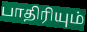
பாதிரியும்